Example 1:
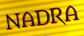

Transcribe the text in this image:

NADRA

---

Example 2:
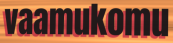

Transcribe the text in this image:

vaamukomu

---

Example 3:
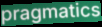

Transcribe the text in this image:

pragmatics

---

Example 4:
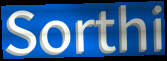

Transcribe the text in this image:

Sorthi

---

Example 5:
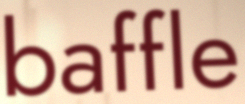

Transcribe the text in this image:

baffle